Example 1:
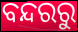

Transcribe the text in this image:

ବନ୍ଦରରୁ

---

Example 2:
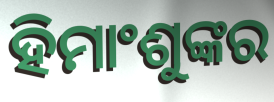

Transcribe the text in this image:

ହିମାଂଶୁଙ୍କର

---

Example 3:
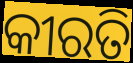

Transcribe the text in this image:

କୀରତି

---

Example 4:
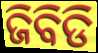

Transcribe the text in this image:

ଜିବିଡି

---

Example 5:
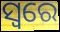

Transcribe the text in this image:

ସ୍ବରେ